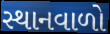
સ્થાનવાળો